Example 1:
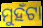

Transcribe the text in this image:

ମୁହଁଟା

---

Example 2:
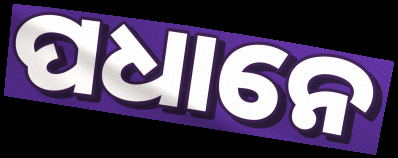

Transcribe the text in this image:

ପଧାନେ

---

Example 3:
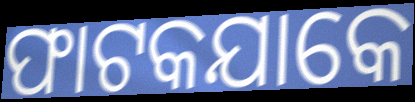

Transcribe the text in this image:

ଫାଟକଯାକେ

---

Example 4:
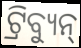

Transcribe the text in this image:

ଟ୍ରିବ୍ୟୁନ୍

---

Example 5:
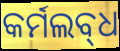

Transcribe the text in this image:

କର୍ମଲବ୍‌ଧ